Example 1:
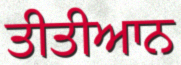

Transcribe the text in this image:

ਤੀਤੀਆਨ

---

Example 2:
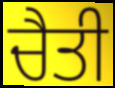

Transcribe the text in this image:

ਚੈਤੀ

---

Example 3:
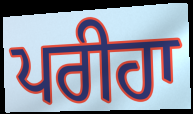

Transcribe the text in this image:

ਪਰੀਹਾ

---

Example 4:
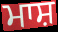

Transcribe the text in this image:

ਮਾਸ਼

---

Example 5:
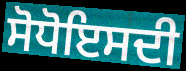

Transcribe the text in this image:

ਸੋਧੋਇਸਦੀ